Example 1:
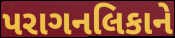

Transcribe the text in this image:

પરાગનલિકાને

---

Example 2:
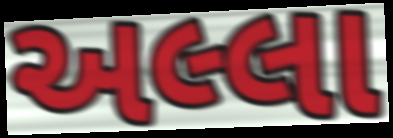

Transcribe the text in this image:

અલ્લા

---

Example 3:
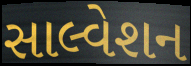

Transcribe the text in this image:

સાલ્વેશન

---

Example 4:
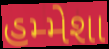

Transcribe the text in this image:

હમ્મેશા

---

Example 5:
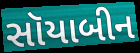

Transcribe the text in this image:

સૉયાબીન